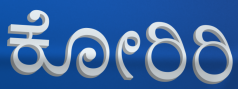
ಕೋರಿರಿ